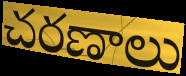
చరణాలు